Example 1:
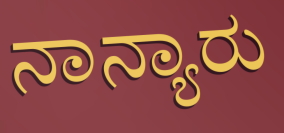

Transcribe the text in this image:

ನಾನ್ಯಾರು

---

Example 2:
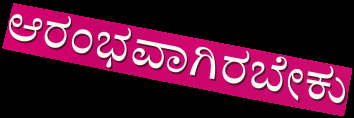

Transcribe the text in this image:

ಆರಂಭವಾಗಿರಬೇಕು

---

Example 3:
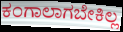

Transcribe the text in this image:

ಕಂಗಾಲಾಗಬೇಕಿಲ್ಲ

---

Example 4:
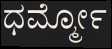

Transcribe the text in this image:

ಧರ್ಮ್ಮೋ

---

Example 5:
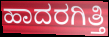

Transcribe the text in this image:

ಹಾದರಗಿತ್ತಿ